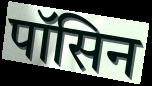
पॉसिन